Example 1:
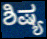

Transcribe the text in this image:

ಶಿಷ್ಯ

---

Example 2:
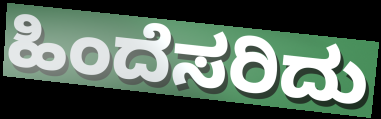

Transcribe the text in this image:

ಹಿಂದೆಸರಿದು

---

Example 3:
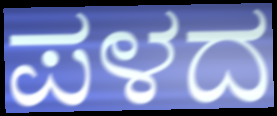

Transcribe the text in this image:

ಪಳದ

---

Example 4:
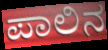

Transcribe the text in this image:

ಪಾಲಿನ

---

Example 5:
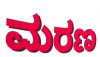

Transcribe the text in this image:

ಮರಣ